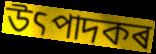
উৎপাদকৰ